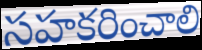
సహకరించాలి